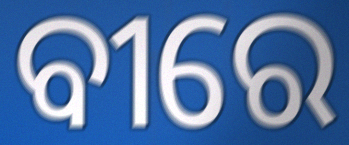
ବୀରେ